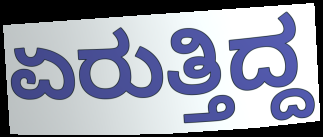
ಏರುತ್ತಿದ್ದ